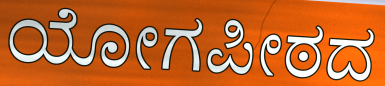
ಯೋಗಪೀಠದ